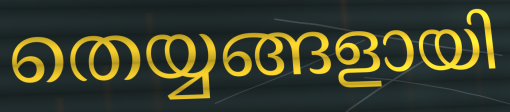
തെയ്യങ്ങളായി